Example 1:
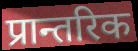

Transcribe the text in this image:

प्रान्तरिक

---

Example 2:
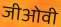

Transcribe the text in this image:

जीओवी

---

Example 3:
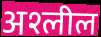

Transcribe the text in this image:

अश्लील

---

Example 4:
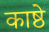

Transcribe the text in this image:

काष्ठे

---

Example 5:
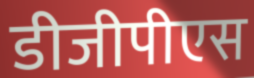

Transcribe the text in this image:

डीजीपीएस